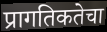
प्रागतिकतेचा